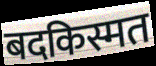
बदकिस्मत